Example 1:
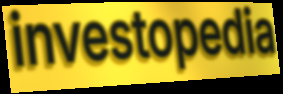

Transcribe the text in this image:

investopedia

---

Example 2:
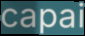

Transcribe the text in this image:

capai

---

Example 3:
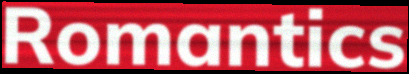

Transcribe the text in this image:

Romantics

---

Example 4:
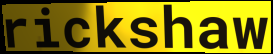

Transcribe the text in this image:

rickshaw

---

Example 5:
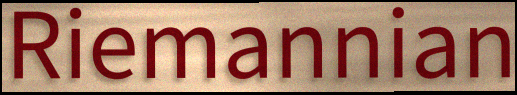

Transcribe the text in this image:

Riemannian